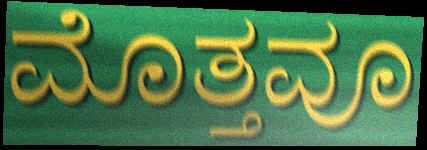
ಮೊತ್ತವೂ